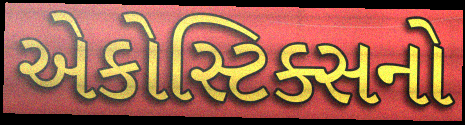
એકોસ્ટિક્સનો